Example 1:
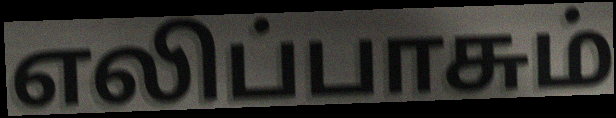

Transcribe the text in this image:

எலிப்பாசும்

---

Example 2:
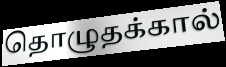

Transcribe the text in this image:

தொழுதக்கால்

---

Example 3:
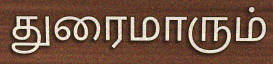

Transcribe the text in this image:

துரைமாரும்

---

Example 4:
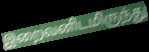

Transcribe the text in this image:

இறைவனிடமிருந்து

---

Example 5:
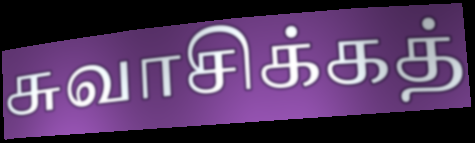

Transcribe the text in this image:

சுவாசிக்கத்